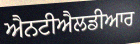
ਐਨਟੀਐਲਡੀਆਰ